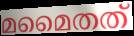
മമൈതത്